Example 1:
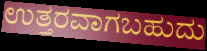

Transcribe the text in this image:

ಉತ್ತರವಾಗಬಹುದು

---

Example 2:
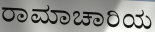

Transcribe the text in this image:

ರಾಮಾಚಾರಿಯ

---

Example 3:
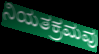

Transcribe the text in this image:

ನಿಯತಕ್ರಮವು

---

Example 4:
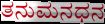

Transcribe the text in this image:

ತನುಮನಧನ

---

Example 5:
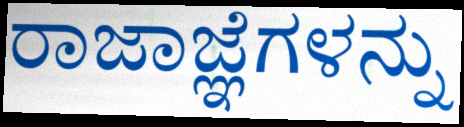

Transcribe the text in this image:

ರಾಜಾಜ್ಞೆಗಳನ್ನು